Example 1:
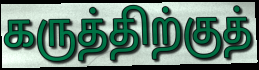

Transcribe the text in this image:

கருத்திற்குத்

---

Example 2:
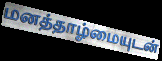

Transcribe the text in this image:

மனத்தாழ்மையுடன்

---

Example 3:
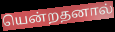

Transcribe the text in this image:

யென்றதனால்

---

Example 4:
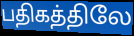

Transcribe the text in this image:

பதிகத்திலே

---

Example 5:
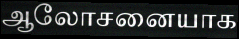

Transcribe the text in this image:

ஆலோசனையாக